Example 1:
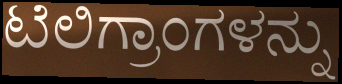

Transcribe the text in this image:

ಟೆಲಿಗ್ರಾಂಗಳನ್ನು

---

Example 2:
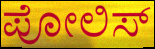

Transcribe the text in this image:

ಪೋಲಿಸ್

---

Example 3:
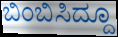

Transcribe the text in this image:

ಬಿಂಬಿಸಿದ್ದೂ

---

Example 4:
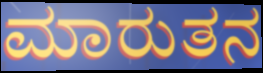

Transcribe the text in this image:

ಮಾರುತನ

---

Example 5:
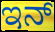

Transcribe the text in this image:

ಇನ್